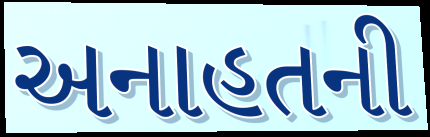
અનાહતની